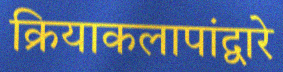
क्रियाकलापांद्वारे